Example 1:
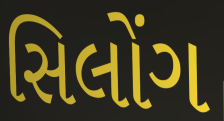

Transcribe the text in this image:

સિલોંગ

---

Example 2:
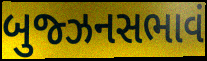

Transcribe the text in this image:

બુજ્ઝનસભાવં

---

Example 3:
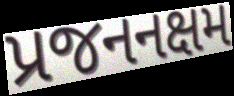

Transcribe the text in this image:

પ્રજનનક્ષમ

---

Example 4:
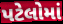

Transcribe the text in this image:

પટેલોમાં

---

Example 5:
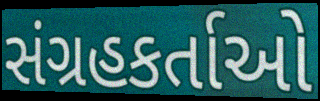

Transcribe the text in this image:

સંગ્રહકર્તાઓ